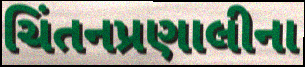
ચિંતનપ્રણાલીના